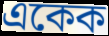
একেক